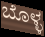
ಬೊಳ್ಳ